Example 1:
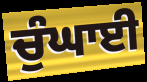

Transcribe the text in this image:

ਚੁੰਘਾਈ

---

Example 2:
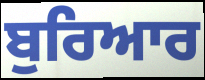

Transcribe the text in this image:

ਬੁਰਿਆਰ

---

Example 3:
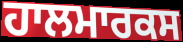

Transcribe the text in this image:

ਹਾਲਮਾਰਕਸ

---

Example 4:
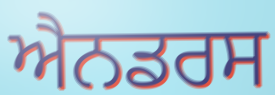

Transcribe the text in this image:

ਐਨਡਰਸ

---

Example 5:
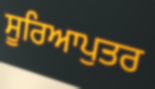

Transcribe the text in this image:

ਸੂਰਿਆਪੁਤਰ